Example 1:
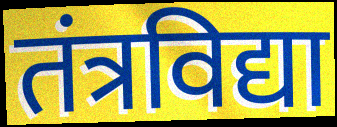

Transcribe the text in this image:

तंत्रविद्या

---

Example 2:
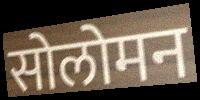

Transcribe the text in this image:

सोलोमन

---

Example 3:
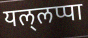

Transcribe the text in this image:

यल्लप्पा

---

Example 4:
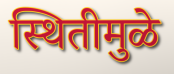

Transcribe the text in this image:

स्थितीमुळे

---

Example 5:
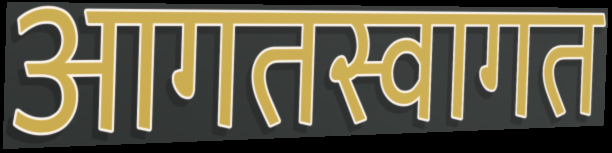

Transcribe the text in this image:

आगतस्वागत